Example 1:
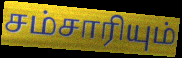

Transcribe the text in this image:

சம்சாரியும்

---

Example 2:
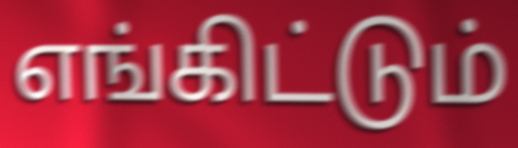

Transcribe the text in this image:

எங்கிட்டும்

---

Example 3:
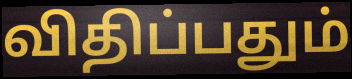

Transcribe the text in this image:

விதிப்பதும்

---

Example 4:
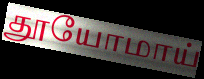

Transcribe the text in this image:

தூயோமாய்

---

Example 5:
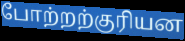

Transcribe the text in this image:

போற்றற்குரியன